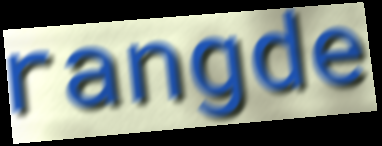
rangde